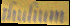
thulium